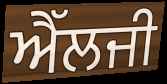
ਐੱਲਜੀ